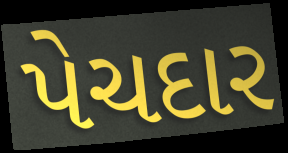
પેચદાર